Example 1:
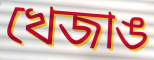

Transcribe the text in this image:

খেজাঙ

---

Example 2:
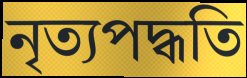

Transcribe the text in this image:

নৃত্যপদ্ধতি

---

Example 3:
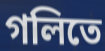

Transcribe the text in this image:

গলিতে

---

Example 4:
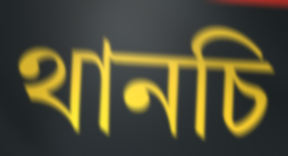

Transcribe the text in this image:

থানচি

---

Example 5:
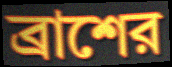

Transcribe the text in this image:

ব্রাশের